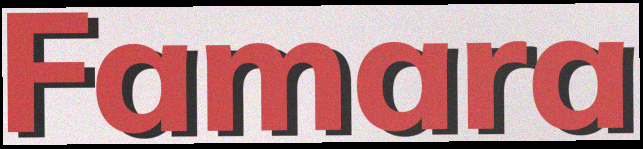
Famara